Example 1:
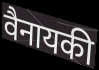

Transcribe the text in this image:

वैनायकी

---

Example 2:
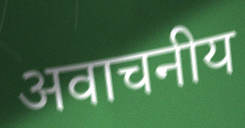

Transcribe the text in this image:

अवाचनीय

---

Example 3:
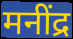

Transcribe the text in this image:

मनींद्र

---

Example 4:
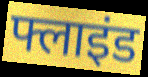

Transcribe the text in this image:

फ्लाइंड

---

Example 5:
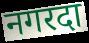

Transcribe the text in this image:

नगरदा